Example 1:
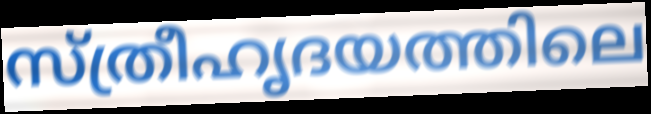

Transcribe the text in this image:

സ്ത്രീഹൃദയത്തിലെ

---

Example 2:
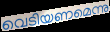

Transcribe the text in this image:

വെടിയണമെന്നു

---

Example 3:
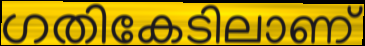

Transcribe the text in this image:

ഗതികേടിലാണ്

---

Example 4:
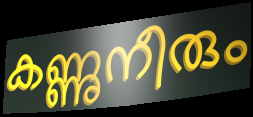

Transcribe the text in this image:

കണ്ണുനീരും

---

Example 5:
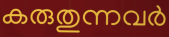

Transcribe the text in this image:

കരുതുന്നവർ